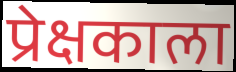
प्रेक्षकाला